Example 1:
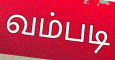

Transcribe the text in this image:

வம்படி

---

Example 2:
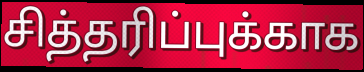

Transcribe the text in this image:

சித்தரிப்புக்காக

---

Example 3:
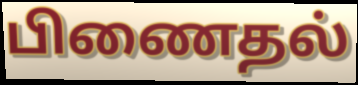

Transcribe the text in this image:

பிணைதல்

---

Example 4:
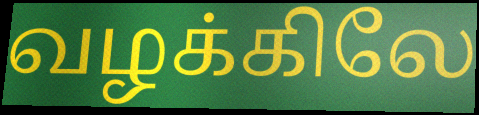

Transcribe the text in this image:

வழக்கிலே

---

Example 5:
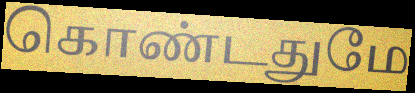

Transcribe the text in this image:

கொண்டதுமே